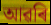
আৱৰি